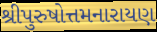
શ્રીપુરુષોત્તમનારાયણ